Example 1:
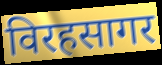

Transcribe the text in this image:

विरहसागर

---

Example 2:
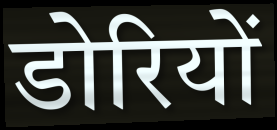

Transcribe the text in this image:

डोरियों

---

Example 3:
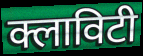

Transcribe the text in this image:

क्लाविटी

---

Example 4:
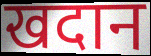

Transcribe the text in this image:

खदान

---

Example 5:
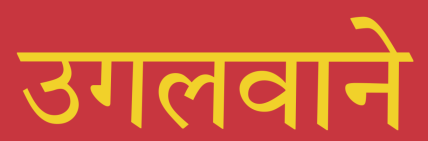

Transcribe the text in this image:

उगलवाने